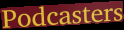
Podcasters